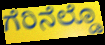
ಗೆರಿನೆಲ್ಡೊ